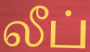
லீப்